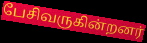
பேசிவருகின்றனர்